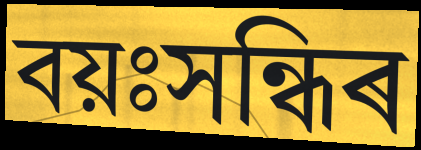
বয়ঃসন্ধিৰ